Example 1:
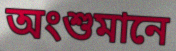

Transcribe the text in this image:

অংশুমানে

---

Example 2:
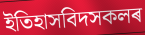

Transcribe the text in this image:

ইতিহাসবিদসকলৰ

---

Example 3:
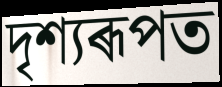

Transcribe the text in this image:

দৃশ্যৰূপত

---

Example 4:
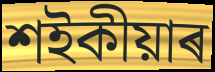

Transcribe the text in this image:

শইকীয়াৰ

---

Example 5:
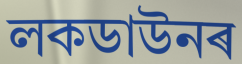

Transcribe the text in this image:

লকডাউনৰ